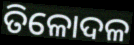
ତିଳୋଦଳ